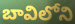
బావిలోని